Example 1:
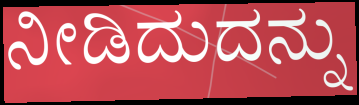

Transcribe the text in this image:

ನೀಡಿದುದನ್ನು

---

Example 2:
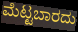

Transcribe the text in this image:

ಮೆಟ್ಟಬಾರದು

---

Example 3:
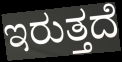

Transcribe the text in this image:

ಇರುತ್ತದೆ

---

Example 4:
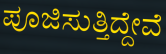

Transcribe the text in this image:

ಪೂಜಿಸುತ್ತಿದ್ದೇವೆ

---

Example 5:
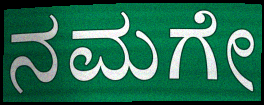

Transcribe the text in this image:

ನಮಗೇ